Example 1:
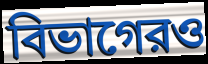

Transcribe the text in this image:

বিভাগেরও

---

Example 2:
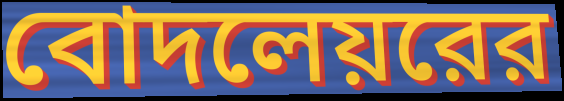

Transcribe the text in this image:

বোদলেয়রের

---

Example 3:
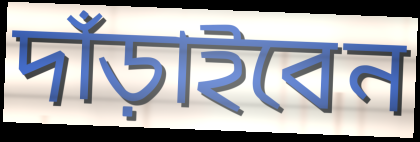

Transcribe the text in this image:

দাঁড়াইবেন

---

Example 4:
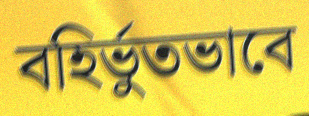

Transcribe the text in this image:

বহির্ভুতভাবে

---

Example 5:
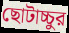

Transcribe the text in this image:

ছোটাচ্চুর